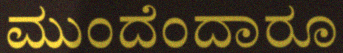
ಮುಂದೆಂದಾರೂ